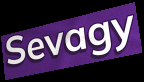
Sevagy